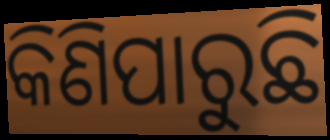
କିଣିପାରୁଛି